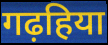
गढ़हिया